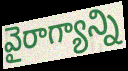
వైరాగ్యాన్ని